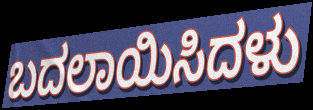
ಬದಲಾಯಿಸಿದಳು